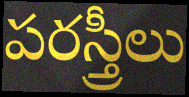
పరస్త్రీలు